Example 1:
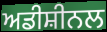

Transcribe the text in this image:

ਅਡੀਸ਼ੀਨਲ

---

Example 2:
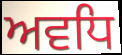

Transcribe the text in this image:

ਅਵਧਿ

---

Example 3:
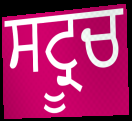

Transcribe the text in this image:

ਸਟ੍ਰੂਚ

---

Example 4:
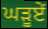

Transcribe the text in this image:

ਘੜੂਏਂ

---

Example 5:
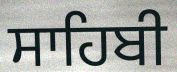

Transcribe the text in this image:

ਸਾਹਿਬੀ